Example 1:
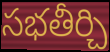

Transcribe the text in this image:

సభతీర్చి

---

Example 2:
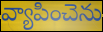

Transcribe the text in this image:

వ్యాపించెను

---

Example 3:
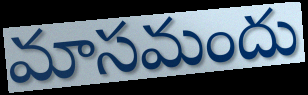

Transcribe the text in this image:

మాసమందు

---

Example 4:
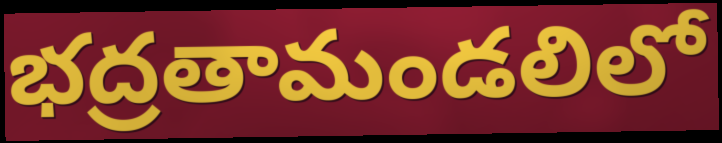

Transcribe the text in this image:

భద్రతామండలిలో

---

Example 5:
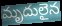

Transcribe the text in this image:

మృదులైన